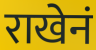
राखेनं